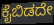
ಕೈಬಿಡದೇ